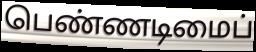
பெண்ணடிமைப்